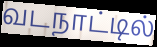
வடநாட்டில்